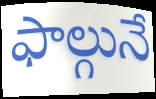
ఫాల్గునే